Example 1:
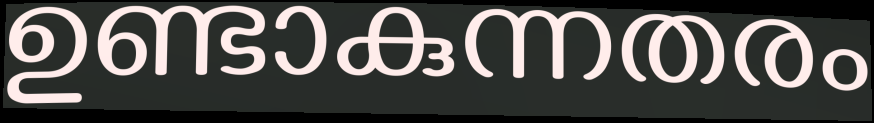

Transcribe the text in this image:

ഉണ്ടാകുന്നതരം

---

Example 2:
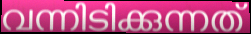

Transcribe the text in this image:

വന്നിടിക്കുന്നത്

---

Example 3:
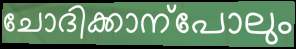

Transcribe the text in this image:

ചോദിക്കാന്പോലും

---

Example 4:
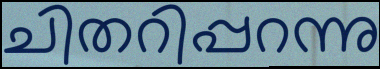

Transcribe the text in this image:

ചിതറിപ്പറന്നു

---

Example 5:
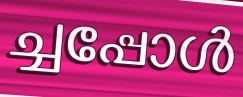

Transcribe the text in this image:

ച്ചപ്പോൾ